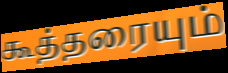
கூத்தரையும்